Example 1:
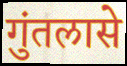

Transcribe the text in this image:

गुंतलासे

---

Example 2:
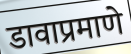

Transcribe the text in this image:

डावाप्रमाणे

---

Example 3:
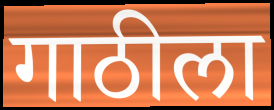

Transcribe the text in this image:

गाठीला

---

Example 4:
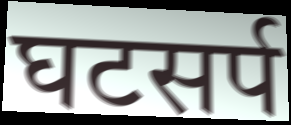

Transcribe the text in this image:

घटसर्प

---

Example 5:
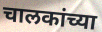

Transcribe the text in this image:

चालकांच्या